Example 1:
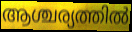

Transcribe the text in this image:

ആശ്ചര്യത്തിൽ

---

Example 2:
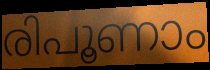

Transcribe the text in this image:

രിപൂണാം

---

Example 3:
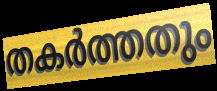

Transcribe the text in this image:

തകർത്തതും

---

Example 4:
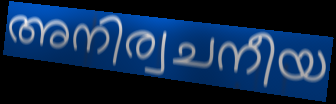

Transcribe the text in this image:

അനിര്വചനീയ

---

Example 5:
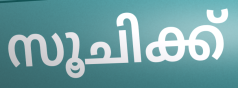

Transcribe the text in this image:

സൂചിക്ക്